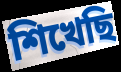
শিখেছি